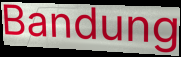
Bandung